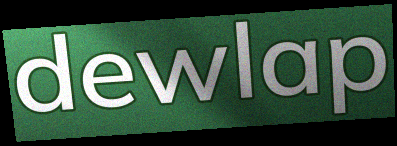
dewlap